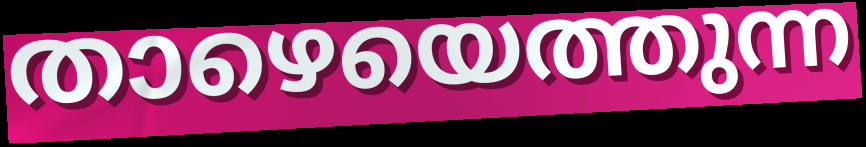
താഴെയെത്തുന്ന